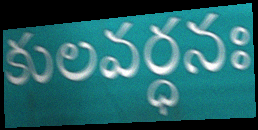
కులవర్ధనః